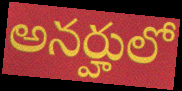
అనర్హులో